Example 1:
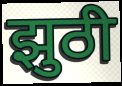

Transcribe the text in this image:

झुठी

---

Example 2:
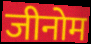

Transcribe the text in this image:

जीनोम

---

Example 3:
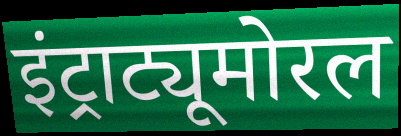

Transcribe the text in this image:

इंट्राट्यूमोरल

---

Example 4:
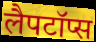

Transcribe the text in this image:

लैपटॉप्‍स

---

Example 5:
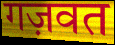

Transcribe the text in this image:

गज़वत